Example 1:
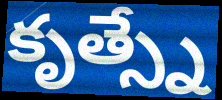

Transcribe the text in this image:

కృత్స్నే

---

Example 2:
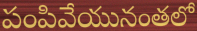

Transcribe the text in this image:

పంపివేయునంతలో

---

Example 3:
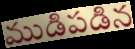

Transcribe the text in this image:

ముడిపడిన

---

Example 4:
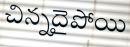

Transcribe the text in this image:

చిన్నదైపోయి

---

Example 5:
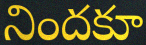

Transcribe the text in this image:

నిందకూ